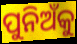
ପୁନିଅଁକୁ